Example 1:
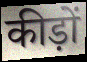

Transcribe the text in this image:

कीड़ों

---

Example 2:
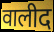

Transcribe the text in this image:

वालीद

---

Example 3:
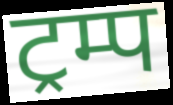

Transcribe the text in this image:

ट्रम्‍प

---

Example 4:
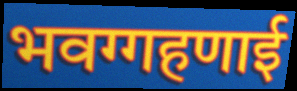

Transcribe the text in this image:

भवग्गहणाई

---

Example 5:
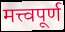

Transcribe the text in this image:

मत्त्वपूर्ण